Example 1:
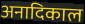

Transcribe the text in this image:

अनादिकाल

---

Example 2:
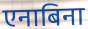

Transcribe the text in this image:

एनाबिना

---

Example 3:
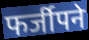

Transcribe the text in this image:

फर्जीपने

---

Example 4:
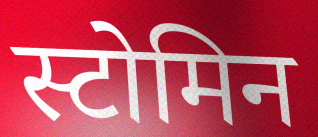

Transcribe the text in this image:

स्टोमिन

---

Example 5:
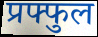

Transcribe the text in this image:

प्रफ्फुल